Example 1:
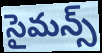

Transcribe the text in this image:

సైమన్స్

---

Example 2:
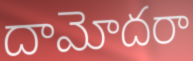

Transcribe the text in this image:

దామోదరా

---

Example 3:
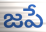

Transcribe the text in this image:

జపే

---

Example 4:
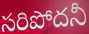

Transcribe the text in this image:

సరిపోదనీ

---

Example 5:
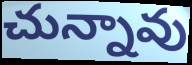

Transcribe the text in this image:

చున్నావు